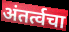
अंतर्त्वचा